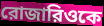
রোজারিওকে